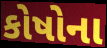
કોષોના